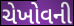
ચેખોવની